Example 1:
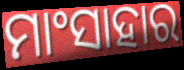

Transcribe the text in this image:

ମାଂସାହାର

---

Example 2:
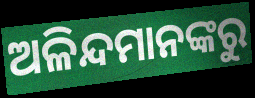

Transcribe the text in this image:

ଅଳିନ୍ଦମାନଙ୍କରୁ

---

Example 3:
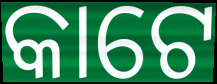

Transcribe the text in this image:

କାଟେ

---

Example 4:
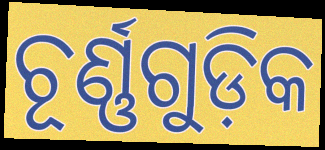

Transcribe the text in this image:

ଚୂର୍ଣ୍ଣଗୁଡ଼ିକ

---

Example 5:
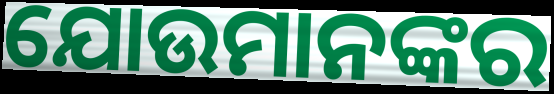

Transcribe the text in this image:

ଯୋଉମାନଙ୍କର